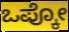
ಒಪ್ಕೋ